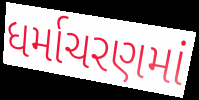
ધર્માચરણમાં